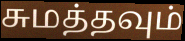
சுமத்தவும்